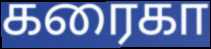
கரைகா